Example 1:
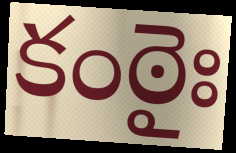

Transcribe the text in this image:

కంఠైః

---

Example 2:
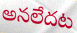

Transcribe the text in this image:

అనలేదట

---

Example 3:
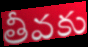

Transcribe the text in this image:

తీవకు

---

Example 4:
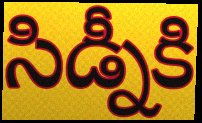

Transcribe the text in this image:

సిడ్నీకి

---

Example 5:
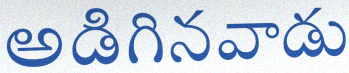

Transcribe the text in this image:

అడిగినవాడు